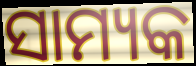
ସାମ୍ୟକ